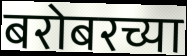
बरोबरच्या